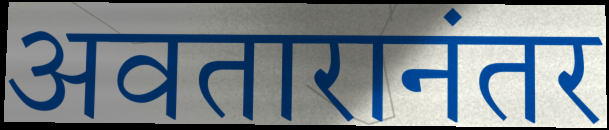
अवतारानंतर